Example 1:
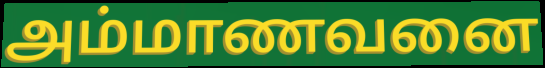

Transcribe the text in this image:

அம்மாணவனை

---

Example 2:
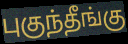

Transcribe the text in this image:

புகுந்தீங்கு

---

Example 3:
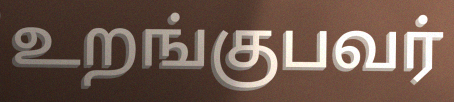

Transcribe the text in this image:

உறங்குபவர்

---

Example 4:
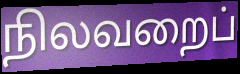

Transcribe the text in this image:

நிலவறைப்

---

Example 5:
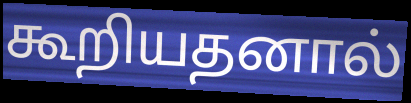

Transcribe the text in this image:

கூறியதனால்